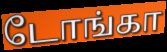
டோங்கா